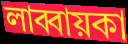
লাব্বায়কা